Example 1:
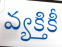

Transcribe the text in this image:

వ్యక్తికీ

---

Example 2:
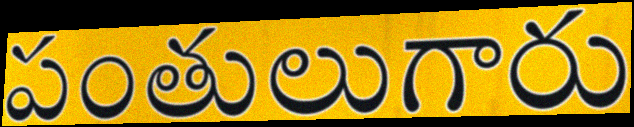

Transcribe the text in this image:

పంతులుగారు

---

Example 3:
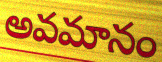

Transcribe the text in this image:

అవమానం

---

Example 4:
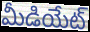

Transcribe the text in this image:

మీడియేట్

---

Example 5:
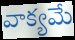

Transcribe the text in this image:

వాక్యమే